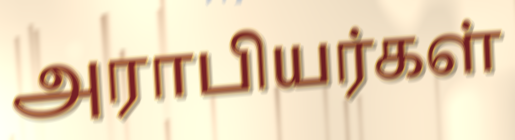
அராபியர்கள்